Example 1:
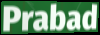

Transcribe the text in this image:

Prabad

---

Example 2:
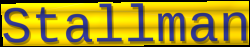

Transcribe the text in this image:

Stallman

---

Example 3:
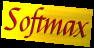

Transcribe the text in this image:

Softmax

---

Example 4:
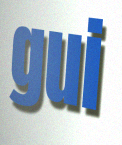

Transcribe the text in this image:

gui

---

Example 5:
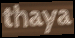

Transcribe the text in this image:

thaya